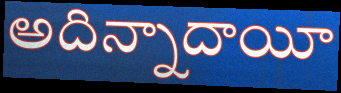
అదిన్నాదాయీ